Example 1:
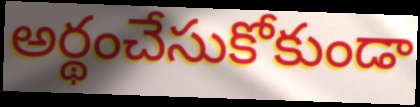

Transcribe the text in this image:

అర్థంచేసుకోకుండా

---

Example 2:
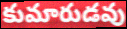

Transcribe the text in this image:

కుమారుడవు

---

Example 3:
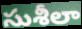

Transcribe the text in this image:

సుశీలా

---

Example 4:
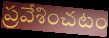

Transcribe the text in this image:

ప్రవేశించటం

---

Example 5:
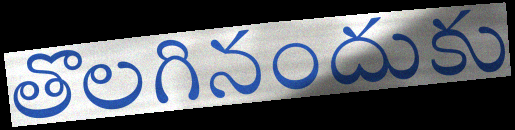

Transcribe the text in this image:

తొలగినందుకు